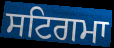
ਸਟਿਗਮਾ